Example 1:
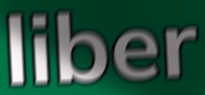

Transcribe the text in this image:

liber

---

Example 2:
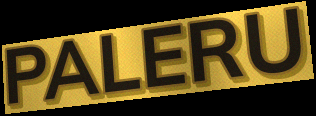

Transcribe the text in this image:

PALERU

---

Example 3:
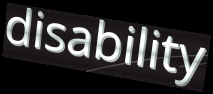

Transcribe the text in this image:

disability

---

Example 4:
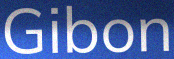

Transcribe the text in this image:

Gibon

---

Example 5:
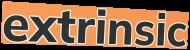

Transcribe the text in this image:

extrinsic